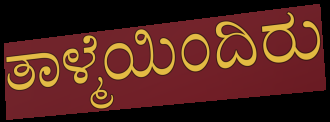
ತಾಳ್ಮೆಯಿಂದಿರು